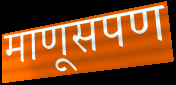
माणूसपण